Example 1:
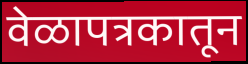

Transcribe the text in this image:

वेळापत्रकातून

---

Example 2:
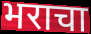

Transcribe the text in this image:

भराचा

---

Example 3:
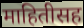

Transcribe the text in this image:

माहितीसह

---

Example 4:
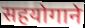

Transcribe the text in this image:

सहयोगाने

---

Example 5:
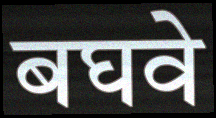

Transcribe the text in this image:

बघवे